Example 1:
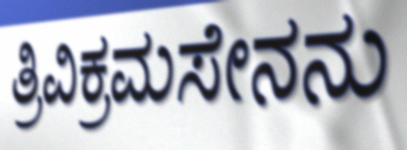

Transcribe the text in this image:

ತ್ರಿವಿಕ್ರಮಸೇನನು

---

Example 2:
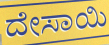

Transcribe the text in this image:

ದೇಸಾಯಿ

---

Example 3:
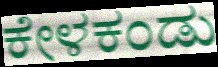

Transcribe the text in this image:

ಕೇಳಕಂಡು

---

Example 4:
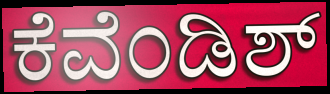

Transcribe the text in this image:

ಕೆವೆಂಡಿಶ್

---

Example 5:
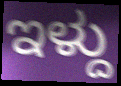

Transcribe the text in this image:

ಇಳ್ದು